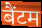
बैंटम